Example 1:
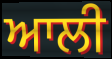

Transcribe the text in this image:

ਆਲੀ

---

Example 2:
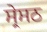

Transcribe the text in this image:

ਸ੍ਰੇਸਠ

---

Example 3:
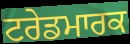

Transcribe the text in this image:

ਟਰੇਡਮਾਰਕ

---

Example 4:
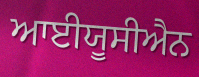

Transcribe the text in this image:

ਆਈਯੂਸੀਐਨ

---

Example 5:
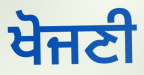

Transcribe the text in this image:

ਖੋਜਣੀ